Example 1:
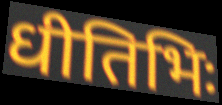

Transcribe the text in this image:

धीतिभिः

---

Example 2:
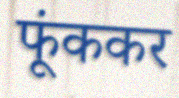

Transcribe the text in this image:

फूंककर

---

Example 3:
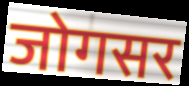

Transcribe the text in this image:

जोगसर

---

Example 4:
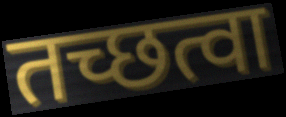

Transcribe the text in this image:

तच्छत्वा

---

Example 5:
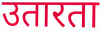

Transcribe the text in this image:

उतारता